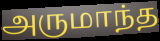
அருமாந்த